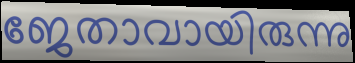
ജേതാവായിരുന്നു